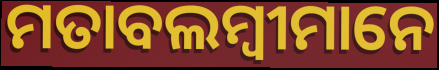
ମତାବଲମ୍ବୀମାନେ